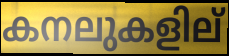
കനലുകളില്